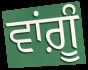
ਵਾਂਗ਼ੂੰ